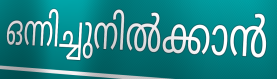
ഒന്നിച്ചുനിൽക്കാൻ